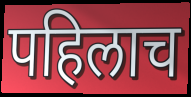
पहिलाच